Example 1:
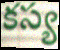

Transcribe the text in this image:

కస్య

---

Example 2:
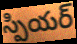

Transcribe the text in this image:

స్పియర్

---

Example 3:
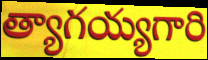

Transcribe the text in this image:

త్యాగయ్యగారి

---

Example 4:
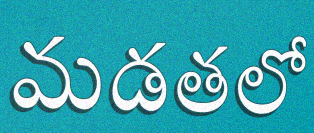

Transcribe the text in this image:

మడతలో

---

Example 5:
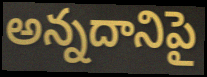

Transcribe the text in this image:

అన్నదానిపై